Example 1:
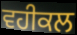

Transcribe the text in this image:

ਵਹੀਕਲ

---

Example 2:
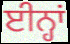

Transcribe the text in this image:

ਈਨ੍ਹਾਂ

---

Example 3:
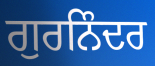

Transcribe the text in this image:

ਗੁਰਨਿੰਦਰ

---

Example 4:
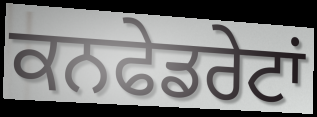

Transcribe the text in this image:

ਕਨਫੇਡਰੇਟਾਂ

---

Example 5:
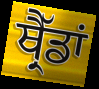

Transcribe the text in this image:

ਥ੍ਰੈੱਡਾਂ